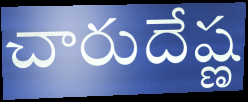
చారుదేష్ణ